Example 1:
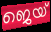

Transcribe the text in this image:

ജെയ്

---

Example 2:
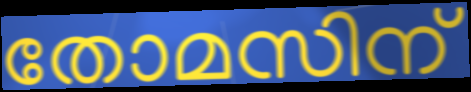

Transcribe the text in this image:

തോമസിന്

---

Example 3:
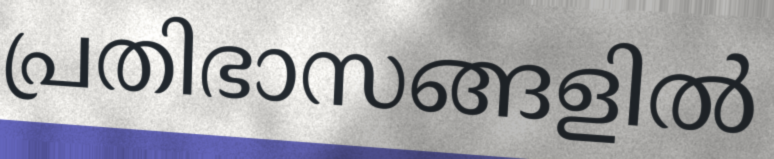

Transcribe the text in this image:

പ്രതിഭാസങ്ങളിൽ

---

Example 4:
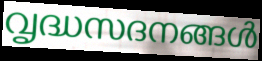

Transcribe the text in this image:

വൃദ്ധസദനങ്ങൾ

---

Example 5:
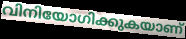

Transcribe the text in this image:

വിനിയോഗിക്കുകയാണ്